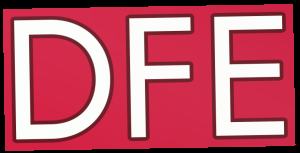
DFE